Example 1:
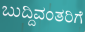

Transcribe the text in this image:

ಬುದ್ದಿವಂತರಿಗೆ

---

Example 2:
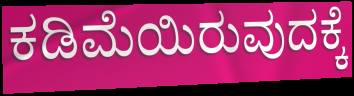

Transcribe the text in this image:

ಕಡಿಮೆಯಿರುವುದಕ್ಕೆ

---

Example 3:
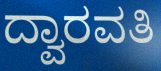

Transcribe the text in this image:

ದ್ವಾರವತಿ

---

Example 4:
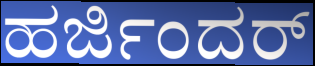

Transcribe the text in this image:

ಹರ್ಜಿಂದರ್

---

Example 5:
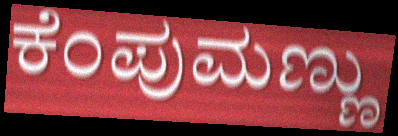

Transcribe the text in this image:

ಕೆಂಪುಮಣ್ಣು